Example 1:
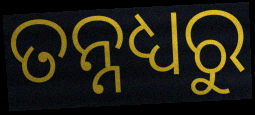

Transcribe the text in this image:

ତନ୍ନଧ୍ୟରୁ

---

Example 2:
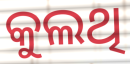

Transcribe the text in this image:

କୁଲଥି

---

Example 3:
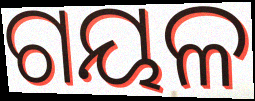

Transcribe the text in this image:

ଗୟଳ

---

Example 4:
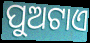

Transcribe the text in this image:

ପୁଅଟାଏ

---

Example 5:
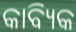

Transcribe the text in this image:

କାବ୍ୟିକ